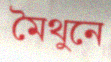
মৈথুনে